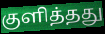
குளித்தது